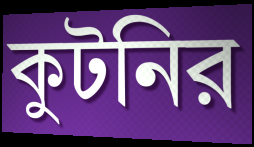
কুটনির